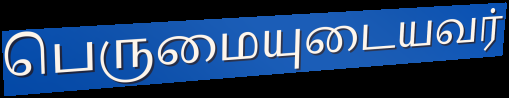
பெருமையுடையவர்